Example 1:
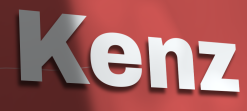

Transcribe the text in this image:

Kenz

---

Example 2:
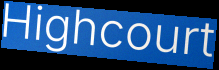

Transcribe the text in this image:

Highcourt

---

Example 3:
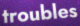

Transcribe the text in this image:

troubles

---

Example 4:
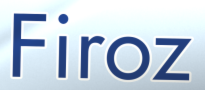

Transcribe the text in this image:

Firoz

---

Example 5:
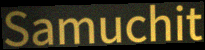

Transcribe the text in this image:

Samuchit